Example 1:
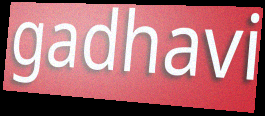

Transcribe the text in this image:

gadhavi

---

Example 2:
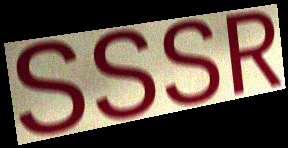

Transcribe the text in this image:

SSSR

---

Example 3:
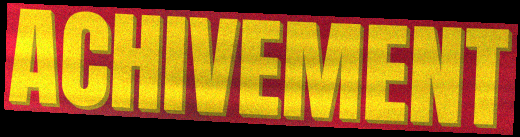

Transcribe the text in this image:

ACHIVEMENT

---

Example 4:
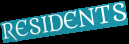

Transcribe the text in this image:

RESIDENTS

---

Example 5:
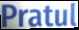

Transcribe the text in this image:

Pratul